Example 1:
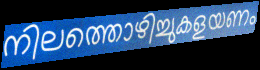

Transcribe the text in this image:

നിലത്തൊഴിച്ചുകളയണം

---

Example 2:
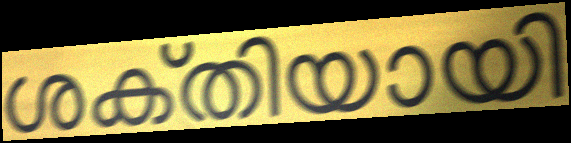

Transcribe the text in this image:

ശക്‌തിയായി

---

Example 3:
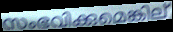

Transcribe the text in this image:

സംഭവിക്കുമെങ്കില്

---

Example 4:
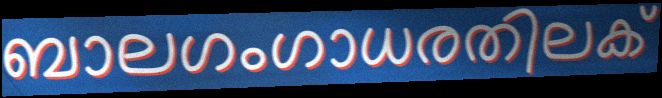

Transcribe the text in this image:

ബാലഗംഗാധരതിലക്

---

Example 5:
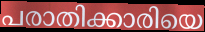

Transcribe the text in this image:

പരാതിക്കാരിയെ